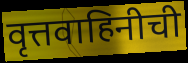
वृत्तवाहिनीची